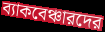
ব্যাকবেঞ্চারদের